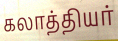
கலாத்தியர்